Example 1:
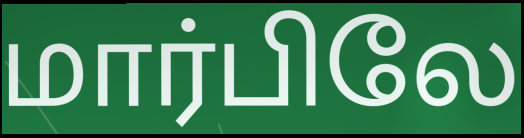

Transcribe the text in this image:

மார்பிலே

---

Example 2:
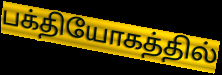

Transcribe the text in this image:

பக்தியோகத்தில்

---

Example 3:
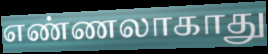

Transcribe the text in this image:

எண்ணலாகாது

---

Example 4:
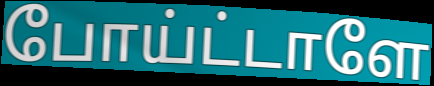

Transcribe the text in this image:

போய்ட்டாளே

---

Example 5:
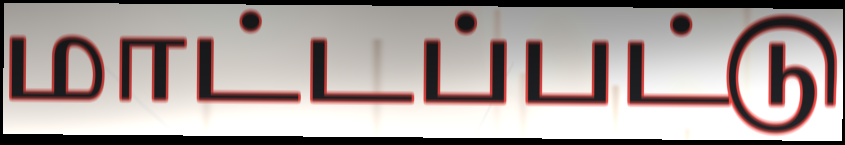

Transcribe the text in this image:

மாட்டப்பட்டு